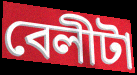
বেলীটা